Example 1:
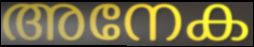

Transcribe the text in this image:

അനേക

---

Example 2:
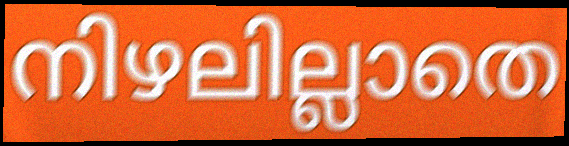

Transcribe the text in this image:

നിഴലില്ലാതെ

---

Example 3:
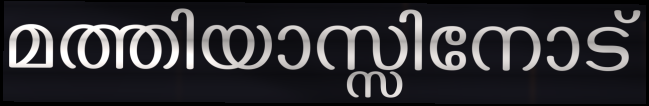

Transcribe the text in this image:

മത്തിയാസ്സിനോട്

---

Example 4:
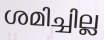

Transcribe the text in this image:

ശമിച്ചില്ല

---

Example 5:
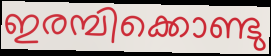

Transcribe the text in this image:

ഇരമ്പിക്കൊണ്ടു